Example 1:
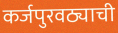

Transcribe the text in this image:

कर्जपुरवठ्याची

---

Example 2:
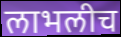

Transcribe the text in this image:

लाभलीच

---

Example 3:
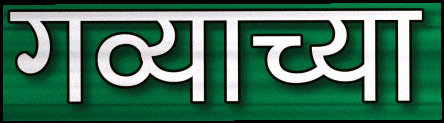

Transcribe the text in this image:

गव्याच्या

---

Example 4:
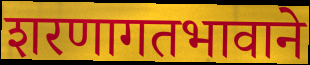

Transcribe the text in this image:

शरणागतभावाने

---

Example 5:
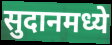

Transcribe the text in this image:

सुदानमध्ये